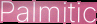
Palmitic